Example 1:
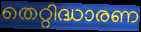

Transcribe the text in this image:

തെറ്റിദ്ധാരണ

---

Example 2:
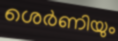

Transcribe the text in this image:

ശെർണിയും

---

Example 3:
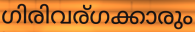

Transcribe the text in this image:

ഗിരിവര്ഗക്കാരും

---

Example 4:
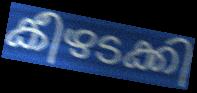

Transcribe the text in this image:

കീഴടക്കി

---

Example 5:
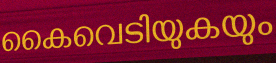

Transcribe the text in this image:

കൈവെടിയുകയും